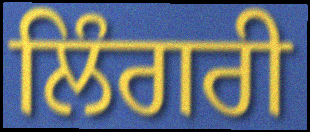
ਲਿੰਗਰੀ